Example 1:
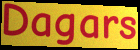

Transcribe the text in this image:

Dagars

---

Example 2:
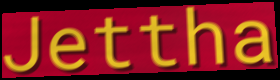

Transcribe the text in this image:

Jettha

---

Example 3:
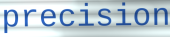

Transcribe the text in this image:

precision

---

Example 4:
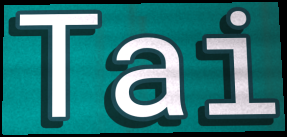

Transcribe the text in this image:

Tai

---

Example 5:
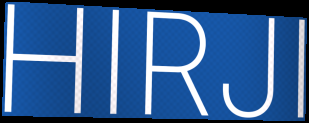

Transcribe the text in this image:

HIRJI